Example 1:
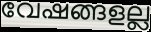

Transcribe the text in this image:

വേഷങ്ങളല്ല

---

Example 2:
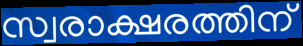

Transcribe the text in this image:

സ്വരാക്ഷരത്തിന്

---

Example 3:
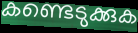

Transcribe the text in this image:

കണ്ടെടുക്കുക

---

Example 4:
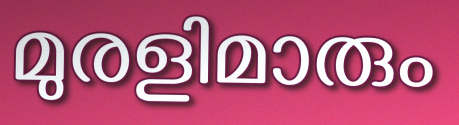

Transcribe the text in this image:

മുരളിമാരും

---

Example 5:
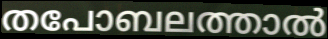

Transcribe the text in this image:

തപോബലത്താൽ